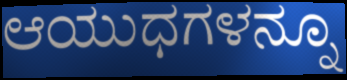
ಆಯುಧಗಳನ್ನೂ